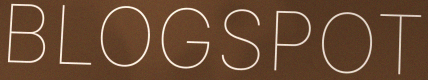
BLOGSPOT